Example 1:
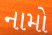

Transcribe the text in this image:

નામો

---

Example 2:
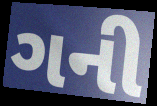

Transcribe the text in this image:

ગની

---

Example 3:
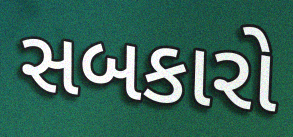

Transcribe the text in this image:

સબકારો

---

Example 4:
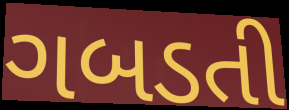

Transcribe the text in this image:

ગબડતી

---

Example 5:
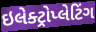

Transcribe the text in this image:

ઇલેક્ટ્રોપ્લેટિંગ